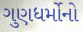
ગુણધર્મોનો